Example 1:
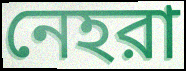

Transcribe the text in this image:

নেহরা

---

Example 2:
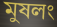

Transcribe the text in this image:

মুষলং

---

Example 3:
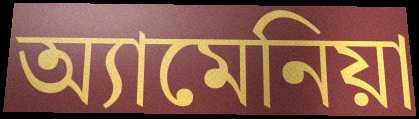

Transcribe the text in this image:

অ্যামেনিয়া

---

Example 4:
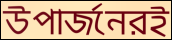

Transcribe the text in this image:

উপার্জনেরই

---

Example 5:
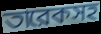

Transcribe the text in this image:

তারেকসহ